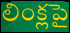
లింక్లపై